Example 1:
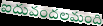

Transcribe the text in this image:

ఐదువందలమంది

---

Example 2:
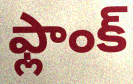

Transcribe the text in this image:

ఫ్లాంక్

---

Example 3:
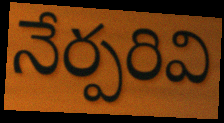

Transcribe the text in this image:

నేర్పరివి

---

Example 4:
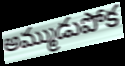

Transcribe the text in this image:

అమ్ముడుపోక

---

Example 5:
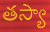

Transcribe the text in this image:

తస్యా